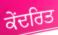
ਕੇਂਦਰਿਤ